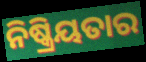
ନିଷ୍କ୍ରିୟତାର